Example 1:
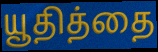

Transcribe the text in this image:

யூதித்தை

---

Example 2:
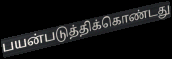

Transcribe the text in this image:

பயன்படுத்திக்கொண்டது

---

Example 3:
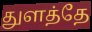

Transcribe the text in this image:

துளத்தே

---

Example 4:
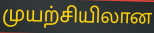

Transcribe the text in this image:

முயற்சியிலான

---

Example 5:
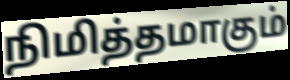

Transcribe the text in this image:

நிமித்தமாகும்